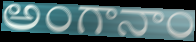
అంగానాం